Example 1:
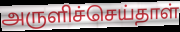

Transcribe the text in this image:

அருளிச்செய்தாள்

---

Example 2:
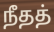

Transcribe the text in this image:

நீதத்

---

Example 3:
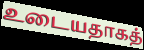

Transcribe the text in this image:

உடையதாகத்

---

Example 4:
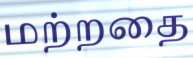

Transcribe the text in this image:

மற்றதை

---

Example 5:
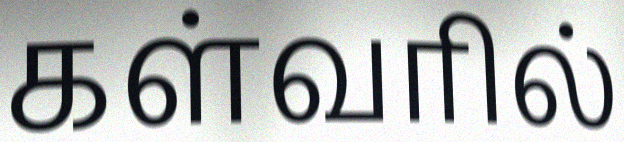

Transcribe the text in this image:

கள்வரில்